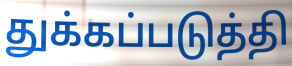
துக்கப்படுத்தி